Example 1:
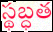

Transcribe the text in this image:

స్థబ్ధత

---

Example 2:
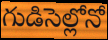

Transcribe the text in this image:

గుడిసెల్లోనో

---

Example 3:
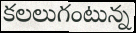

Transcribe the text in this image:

కలలుగంటున్న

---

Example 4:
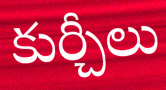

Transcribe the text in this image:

కుర్చీలు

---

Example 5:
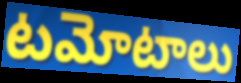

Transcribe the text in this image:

టమోటాలు